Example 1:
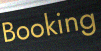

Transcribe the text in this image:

Booking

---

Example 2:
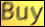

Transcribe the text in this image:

Buy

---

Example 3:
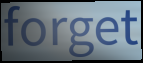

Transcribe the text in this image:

forget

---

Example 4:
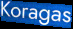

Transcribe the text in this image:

Koragas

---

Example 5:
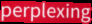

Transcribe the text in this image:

perplexing